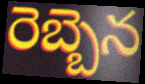
రెబ్బెన